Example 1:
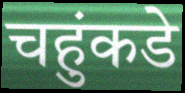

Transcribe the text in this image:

चहुंकडे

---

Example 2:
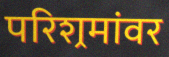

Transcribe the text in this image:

परिश्रमांवर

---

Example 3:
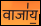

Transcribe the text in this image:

वाजा॑य॒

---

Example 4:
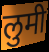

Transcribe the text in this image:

लुमी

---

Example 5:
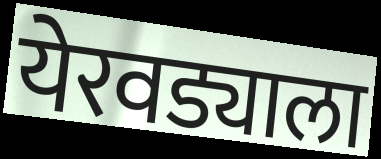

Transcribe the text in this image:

येरवड्याला